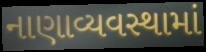
નાણાવ્યવસ્થામાં